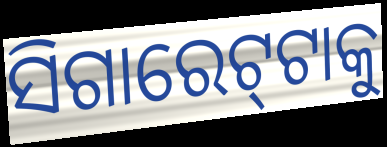
ସିଗାରେଟ୍‍ଟାକୁ